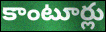
కాంటూర్లు